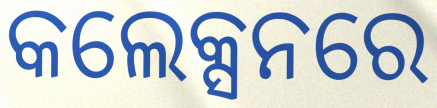
କଲେକ୍ସନରେ